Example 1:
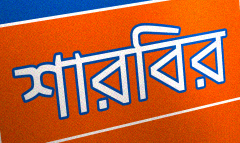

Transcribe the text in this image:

শারবির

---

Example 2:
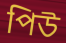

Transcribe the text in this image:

পিউ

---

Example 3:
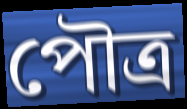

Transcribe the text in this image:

পৌত্র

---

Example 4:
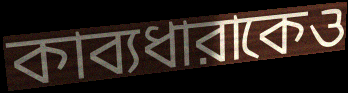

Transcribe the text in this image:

কাব্যধারাকেও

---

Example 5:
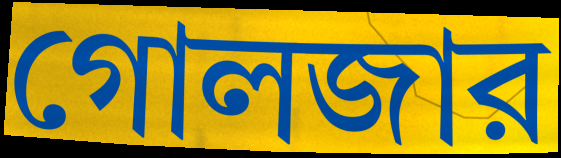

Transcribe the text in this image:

গোলজার